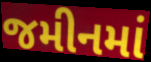
જમીનમાં